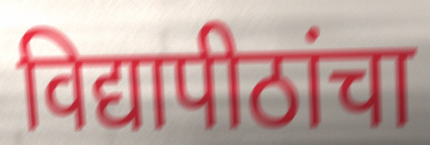
विद्यापीठांचा